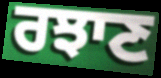
ਰਝਾਣ